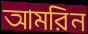
আমরিন